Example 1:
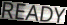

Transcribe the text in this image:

READY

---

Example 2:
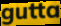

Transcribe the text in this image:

gutta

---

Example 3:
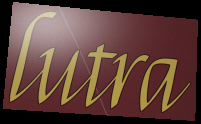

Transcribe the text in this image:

lutra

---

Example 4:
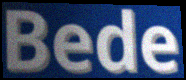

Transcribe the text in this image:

Bede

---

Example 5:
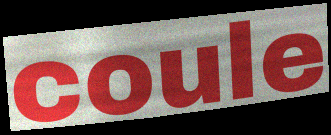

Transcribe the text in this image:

coule